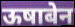
ऊषाबेन